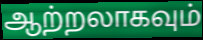
ஆற்றலாகவும்